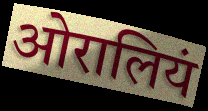
ओरालियं